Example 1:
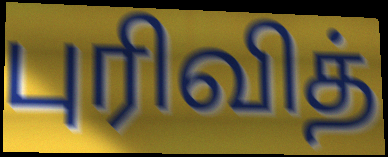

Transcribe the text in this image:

புரிவித்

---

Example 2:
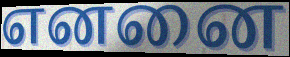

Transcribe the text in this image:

எனனை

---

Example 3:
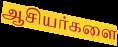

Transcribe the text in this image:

ஆசியர்களை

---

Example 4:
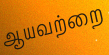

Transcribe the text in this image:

ஆயவற்றை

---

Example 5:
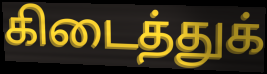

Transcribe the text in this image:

கிடைத்துக்